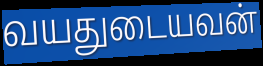
வயதுடையவன்